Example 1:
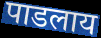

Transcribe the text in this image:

पाडलाय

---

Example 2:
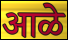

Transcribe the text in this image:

आळे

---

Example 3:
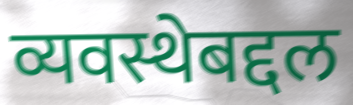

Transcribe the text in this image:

व्यवस्थेबद्दल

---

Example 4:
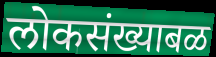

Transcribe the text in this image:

लोकसंख्याबळ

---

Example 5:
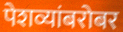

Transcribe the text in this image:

पेशव्यांबरोबर